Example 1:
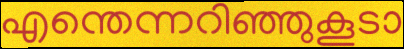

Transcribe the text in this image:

എന്തെന്നറിഞ്ഞുകൂടാ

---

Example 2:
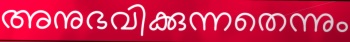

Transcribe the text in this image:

അനുഭവിക്കുന്നതെന്നും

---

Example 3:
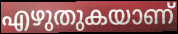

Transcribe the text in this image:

എഴുതുകയാണ്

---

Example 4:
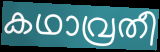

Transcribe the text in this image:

കഥാവ്രതീ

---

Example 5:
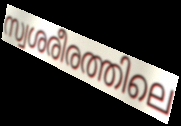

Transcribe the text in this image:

സ്വശരീരത്തിലെ